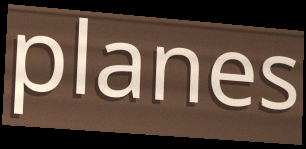
planes